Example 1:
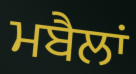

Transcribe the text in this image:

ਮਬੈਲਾਂ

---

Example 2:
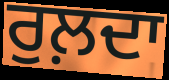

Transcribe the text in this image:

ਰੁਲ਼ਦਾ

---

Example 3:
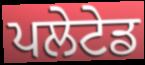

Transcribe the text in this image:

ਪਲੇਟੇਡ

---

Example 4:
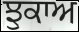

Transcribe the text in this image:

ਝੁਕਾਅ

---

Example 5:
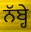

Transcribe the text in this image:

ਨੱਬ੍ਹੇ